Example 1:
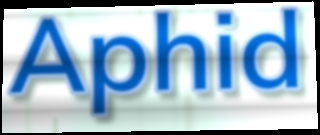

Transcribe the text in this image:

Aphid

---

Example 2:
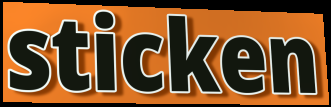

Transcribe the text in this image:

sticken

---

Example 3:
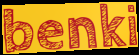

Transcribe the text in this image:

benki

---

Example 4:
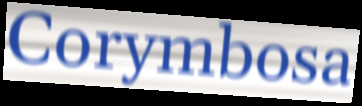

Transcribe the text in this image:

Corymbosa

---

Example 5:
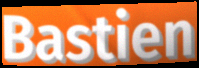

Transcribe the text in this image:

Bastien